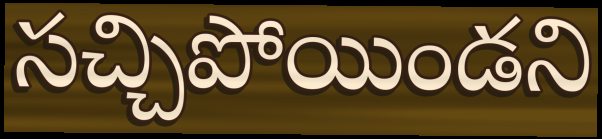
సచ్చిపోయిండని